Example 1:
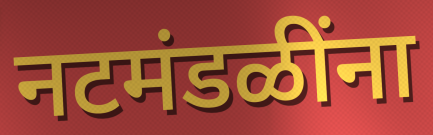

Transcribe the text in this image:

नटमंडळींना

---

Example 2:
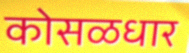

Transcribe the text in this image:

कोसळधार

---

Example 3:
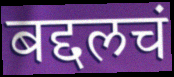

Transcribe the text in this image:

बद्दलचं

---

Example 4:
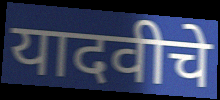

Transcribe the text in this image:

यादवीचे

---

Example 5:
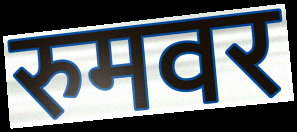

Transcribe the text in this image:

रुमवर